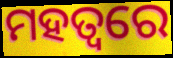
ମହତ୍ୱରେ